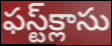
ఫస్ట్‌క్లాసు